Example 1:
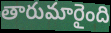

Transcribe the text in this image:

తారుమారైంది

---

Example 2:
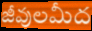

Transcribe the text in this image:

జీవులమీద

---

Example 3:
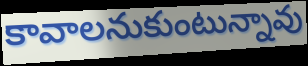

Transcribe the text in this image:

కావాలనుకుంటున్నావు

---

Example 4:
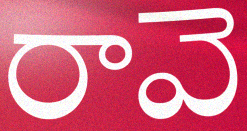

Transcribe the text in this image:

రావె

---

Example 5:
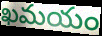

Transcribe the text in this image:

ఖమయం